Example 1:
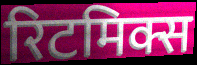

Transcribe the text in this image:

रिटमिक्स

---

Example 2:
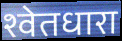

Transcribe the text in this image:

श्वेतधारा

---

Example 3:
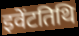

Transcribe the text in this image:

इवेंटतिथि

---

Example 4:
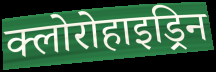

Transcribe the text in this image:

क्लोरोहाइड्रिन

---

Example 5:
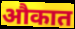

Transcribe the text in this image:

औकात